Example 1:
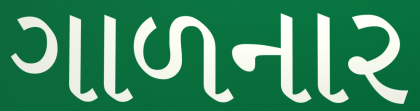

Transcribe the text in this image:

ગાળનાર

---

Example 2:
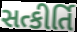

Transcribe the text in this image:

સત્કીર્તિ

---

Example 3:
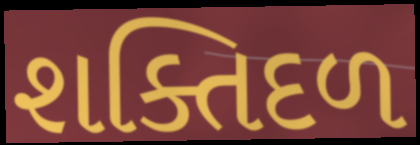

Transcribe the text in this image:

શક્તિદળ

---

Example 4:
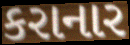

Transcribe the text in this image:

કરાનાર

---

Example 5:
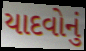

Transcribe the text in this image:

યાદવોનું